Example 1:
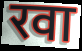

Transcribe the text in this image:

रवा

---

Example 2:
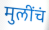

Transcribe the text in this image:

मुलींचं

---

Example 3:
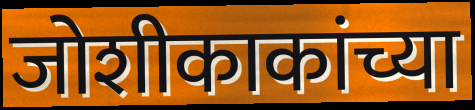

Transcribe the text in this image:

जोशीकाकांच्या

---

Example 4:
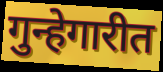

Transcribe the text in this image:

गुन्हेगारीत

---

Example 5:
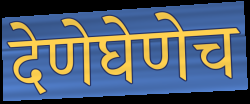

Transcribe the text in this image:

देणेघेणेच